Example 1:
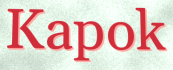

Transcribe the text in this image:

Kapok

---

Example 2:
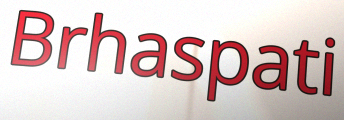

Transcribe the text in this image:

Brhaspati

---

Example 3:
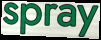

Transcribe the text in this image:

spray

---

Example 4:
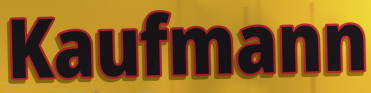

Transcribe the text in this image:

Kaufmann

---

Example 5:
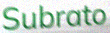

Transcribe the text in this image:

Subrato